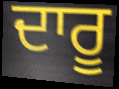
ਦਾਰੂ